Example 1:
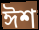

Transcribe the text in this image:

ঈশ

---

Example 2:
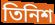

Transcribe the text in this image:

তিনিশ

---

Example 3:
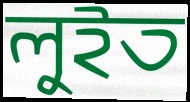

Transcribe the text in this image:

লুইত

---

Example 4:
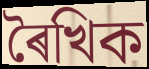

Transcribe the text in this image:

ৰৈখিক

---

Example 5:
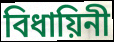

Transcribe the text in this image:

বিধায়িনী